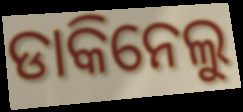
ଡାକିନେଲୁ